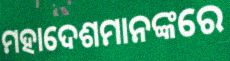
ମହାଦେଶମାନଙ୍କରେ